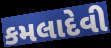
કમલાદેવી